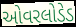
ઓવરલોડેડ